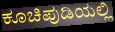
ಕೂಚಿಪುಡಿಯಲ್ಲಿ